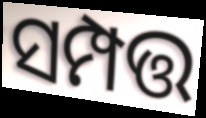
ସମ୍ପତ୍ତ